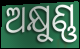
ଅକ୍ଷୁଣ୍ଣ